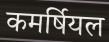
कमर्षियल